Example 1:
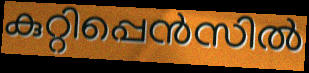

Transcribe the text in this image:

കുറ്റിപ്പെൻസിൽ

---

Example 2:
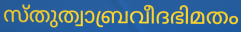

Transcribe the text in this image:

സ്തുത്വാബ്രവീദഭിമതം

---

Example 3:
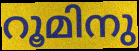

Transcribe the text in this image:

റൂമിനു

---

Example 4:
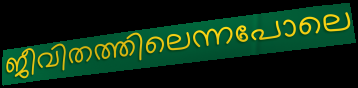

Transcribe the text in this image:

ജീവിതത്തിലെന്നപോലെ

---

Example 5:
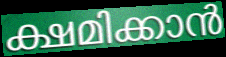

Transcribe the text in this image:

ക്ഷമിക്കാൻ